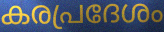
കരപ്രദേശം